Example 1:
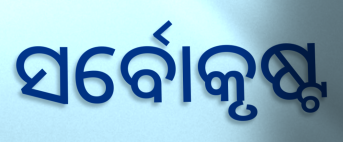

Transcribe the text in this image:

ସର୍ବୋକୃଷ୍ଟ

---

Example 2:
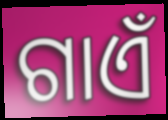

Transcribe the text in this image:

ଗାଏଁ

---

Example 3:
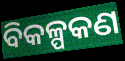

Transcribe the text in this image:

ବିକଳ୍ପକଣ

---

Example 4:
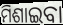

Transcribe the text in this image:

ମିଶାଇବା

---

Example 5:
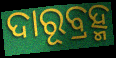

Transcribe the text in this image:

ଦାରୂବ୍ରହ୍ମ